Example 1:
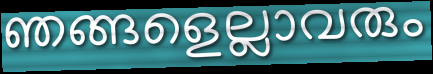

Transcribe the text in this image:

ഞങ്ങളെല്ലാവരും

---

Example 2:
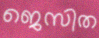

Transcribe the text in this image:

ജെസിത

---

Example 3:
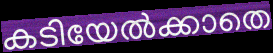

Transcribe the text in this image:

കടിയേൽക്കാതെ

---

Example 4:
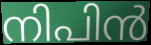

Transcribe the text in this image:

നിപിൻ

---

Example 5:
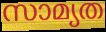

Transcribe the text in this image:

സാമ്യത